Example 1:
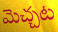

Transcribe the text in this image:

మెచ్చట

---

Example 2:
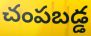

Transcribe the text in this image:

చంపబడ్డ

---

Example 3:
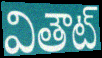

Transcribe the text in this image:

వితౌట్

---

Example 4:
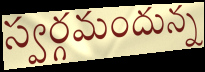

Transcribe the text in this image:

స్వర్గమందున్న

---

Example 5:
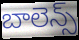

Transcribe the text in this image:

బాలెన్స్